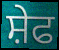
ਸ਼ੇਫ